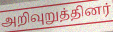
அறிவுறுத்தினர்